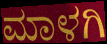
ಮಾಳಗಿ